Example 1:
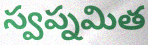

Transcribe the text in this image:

స్వప్నమిత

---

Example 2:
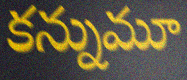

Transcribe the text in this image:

కన్నుమూ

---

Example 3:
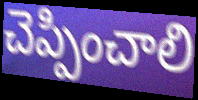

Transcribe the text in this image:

చెప్పించాలి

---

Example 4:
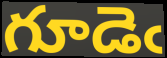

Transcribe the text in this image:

గూడెఁ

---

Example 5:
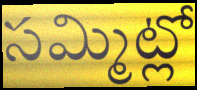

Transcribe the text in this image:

సమ్మిట్లో